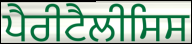
ਪੈਰੀਟੈਲੀਸਿਸ